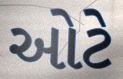
ઓટે